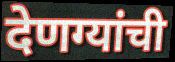
देणग्यांची